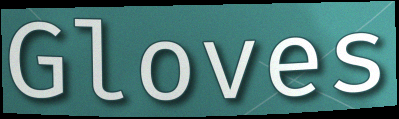
Gloves